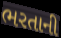
ભરતાની